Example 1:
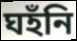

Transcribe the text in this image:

ঘহঁনি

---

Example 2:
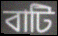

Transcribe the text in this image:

বাটি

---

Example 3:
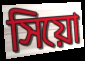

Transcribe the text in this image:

সিয়ো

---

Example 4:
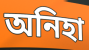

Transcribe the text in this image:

অনিহা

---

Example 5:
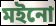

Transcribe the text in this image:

মইনো